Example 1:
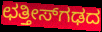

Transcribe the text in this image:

ಛತ್ತೀಸ್‌ಗಢದ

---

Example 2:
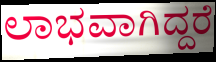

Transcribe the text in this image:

ಲಾಭವಾಗಿದ್ದರೆ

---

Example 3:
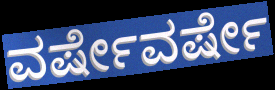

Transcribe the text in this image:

ವರ್ಷೇವರ್ಷೇ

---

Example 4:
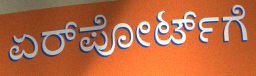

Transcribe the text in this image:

ಏರ್‌ಪೋರ್ಟ್‌ಗೆ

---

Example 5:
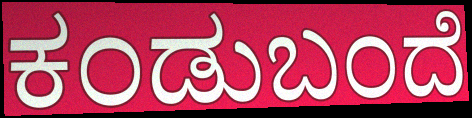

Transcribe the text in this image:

ಕಂಡುಬಂದೆ